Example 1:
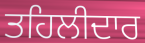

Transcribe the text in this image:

ਤਹਿਲੀਦਾਰ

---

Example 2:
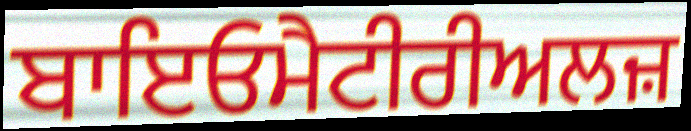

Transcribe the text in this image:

ਬਾਇਓਮੈਟੀਰੀਅਲਜ਼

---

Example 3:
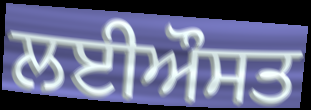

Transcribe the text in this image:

ਲਈਔਸਤ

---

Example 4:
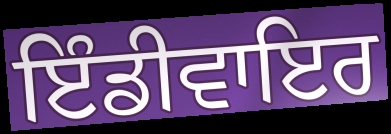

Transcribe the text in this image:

ਇੰਡੀਵਾਇਰ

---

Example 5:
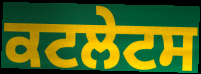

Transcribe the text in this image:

ਕਟਲੇਟਸ